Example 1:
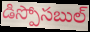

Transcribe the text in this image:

డిస్పోసబుల్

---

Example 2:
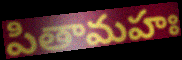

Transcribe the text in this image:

పితామహః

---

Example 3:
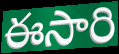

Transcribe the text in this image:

ఈసారి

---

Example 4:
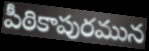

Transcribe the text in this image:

పీఠికాపురమున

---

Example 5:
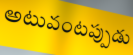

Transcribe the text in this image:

అటువంటప్పుడు